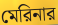
মেরিনার